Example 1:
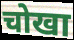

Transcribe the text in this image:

चोखा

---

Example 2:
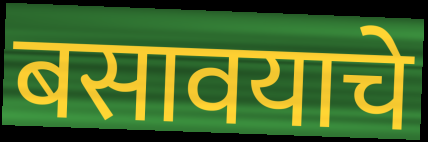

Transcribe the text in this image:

बसावयाचे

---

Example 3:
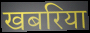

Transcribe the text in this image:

खबरिया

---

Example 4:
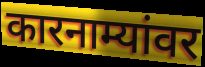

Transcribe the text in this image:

कारनाम्यांवर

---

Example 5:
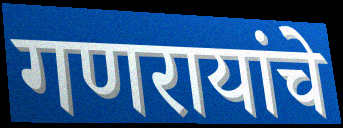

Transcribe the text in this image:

गणरायांचे